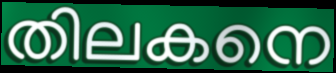
തിലകനെ